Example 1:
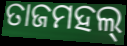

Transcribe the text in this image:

ତାଜମହଲ୍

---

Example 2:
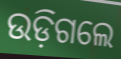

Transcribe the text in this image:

ଉଡ଼ିଗଲେ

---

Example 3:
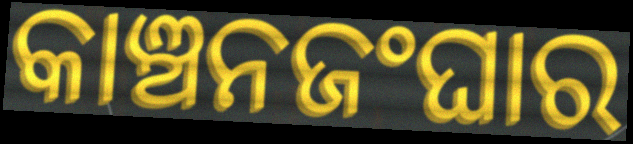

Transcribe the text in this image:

କାଞ୍ଚନଜଂଘାର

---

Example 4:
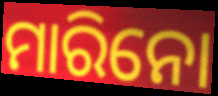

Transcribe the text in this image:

ମାରିନୋ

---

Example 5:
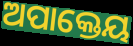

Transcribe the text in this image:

ଅପାକ୍ତେୟ